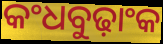
କଂଧବୁଢ଼ାଂକ